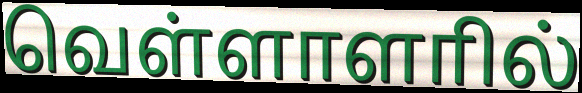
வெள்ளாளரில்